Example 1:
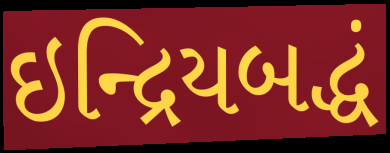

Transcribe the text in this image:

ઇન્દ્રિયબદ્ધં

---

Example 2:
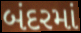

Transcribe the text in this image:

બંદરમાં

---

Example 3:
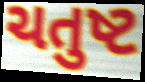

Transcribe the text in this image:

ચતુષ્ટ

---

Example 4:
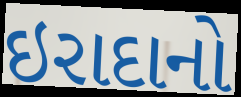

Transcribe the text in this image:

ઇરાદાનો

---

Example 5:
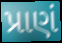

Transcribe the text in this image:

પ્રાણં